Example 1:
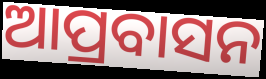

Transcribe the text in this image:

ଆପ୍ରବାସନ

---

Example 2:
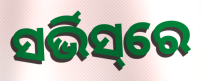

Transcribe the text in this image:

ସର୍ଭିସ୍‌ରେ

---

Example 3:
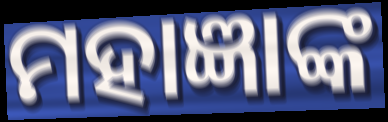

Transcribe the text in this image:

ମହାଜ୍ଞାଙ୍କ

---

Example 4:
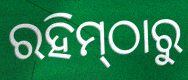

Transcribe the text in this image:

ରହିମ୍‌ଠାରୁ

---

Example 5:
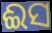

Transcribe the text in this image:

ଈସ